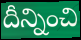
దీన్నించి